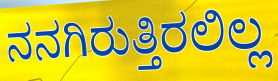
ನನಗಿರುತ್ತಿರಲಿಲ್ಲ